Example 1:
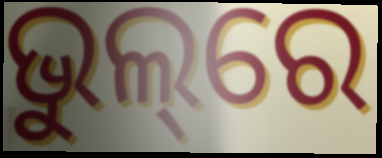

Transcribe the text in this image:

ଭୁଲ୍‌ରେ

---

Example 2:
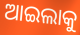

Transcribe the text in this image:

ଆଇଲାକୁ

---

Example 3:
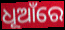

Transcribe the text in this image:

ଧୂଆଁରେ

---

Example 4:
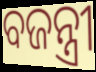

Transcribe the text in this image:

ବଜନ୍ତ୍ରୀ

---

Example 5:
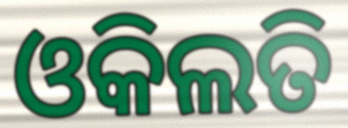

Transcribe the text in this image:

ଓକିଲତି